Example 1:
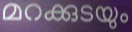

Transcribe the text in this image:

മറക്കുടയും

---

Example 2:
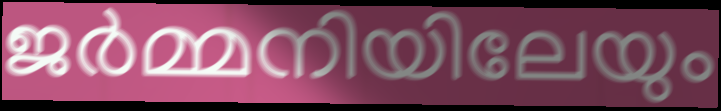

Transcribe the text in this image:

ജർമ്മനിയിലേയും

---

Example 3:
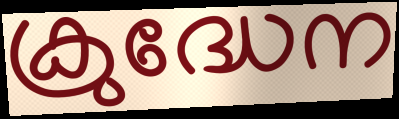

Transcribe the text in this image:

ക്രുദ്ധേന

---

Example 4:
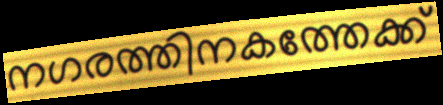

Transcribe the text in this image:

നഗരത്തിനകത്തേക്ക്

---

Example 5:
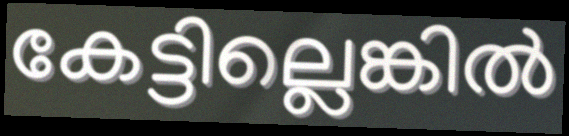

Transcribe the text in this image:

കേട്ടില്ലെങ്കിൽ